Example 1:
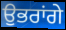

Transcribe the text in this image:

ਉਭਰਾਂਗੇ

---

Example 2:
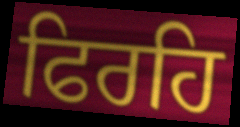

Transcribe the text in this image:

ਫਿਰਹਿ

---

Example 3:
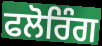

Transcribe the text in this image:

ਫਲੋਰਿੰਗ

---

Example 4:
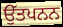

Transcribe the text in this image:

ਉੱਤਪਨਨ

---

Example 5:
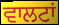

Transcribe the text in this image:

ਵਾਲਟਾਂ